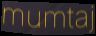
mumtaj